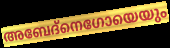
അബേദ്നെഗോയെയും